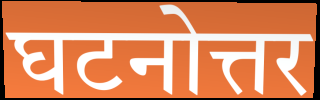
घटनोत्तर